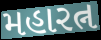
મહારત્ન